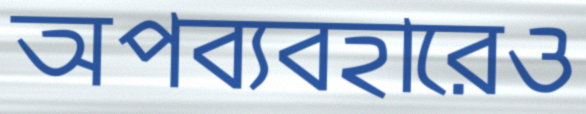
অপব্যবহারেও